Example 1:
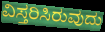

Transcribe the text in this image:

ವಿಸ್ತರಿಸಿರುವುದು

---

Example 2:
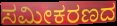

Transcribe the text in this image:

ಸಮೀಕರಣದ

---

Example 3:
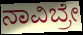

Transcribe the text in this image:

ನಾವಿಬ್ರೇ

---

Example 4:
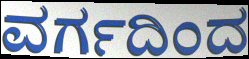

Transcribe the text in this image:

ವರ್ಗದಿಂದ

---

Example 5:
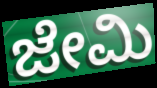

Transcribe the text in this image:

ಜೇಮಿ